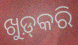
ଖୁଡ଼୍‍କରି